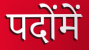
पदोंमें